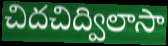
చిదచిద్విలాసా